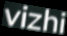
vizhi